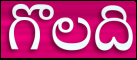
గొలది